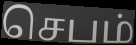
செபம்